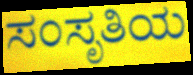
ಸಂಸೃತಿಯ